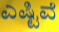
ಎಷ್ಟಿವೆ